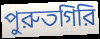
পুরুতগিরি